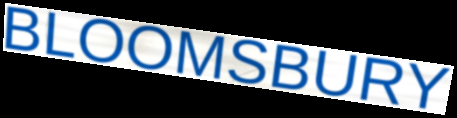
BLOOMSBURY